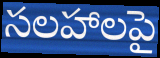
సలహాలపై